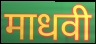
माधवी